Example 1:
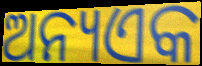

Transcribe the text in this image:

ଅନ୍ୟଏକ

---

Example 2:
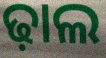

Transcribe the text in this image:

ଢ଼ାଲ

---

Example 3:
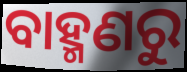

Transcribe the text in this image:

ବାହ୍ମଣରୁ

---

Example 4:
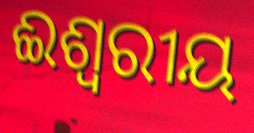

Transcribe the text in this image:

ଈଶ୍ବରୀୟ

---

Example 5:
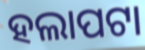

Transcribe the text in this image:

ହଲାପଟା